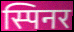
स्पिनर